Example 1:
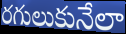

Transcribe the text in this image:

రగులుకునేలా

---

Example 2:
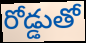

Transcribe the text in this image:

రోడ్డుతో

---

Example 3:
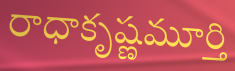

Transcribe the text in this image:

రాధాకృష్ణమూర్తి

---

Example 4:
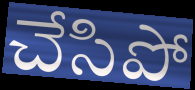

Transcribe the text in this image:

చేసిపో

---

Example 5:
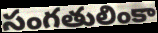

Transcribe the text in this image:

సంగతులింకా